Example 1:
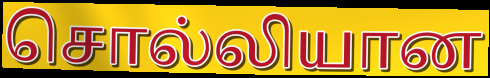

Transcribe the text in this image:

சொல்லியான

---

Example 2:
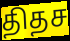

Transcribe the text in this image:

திதச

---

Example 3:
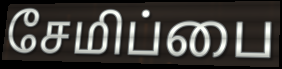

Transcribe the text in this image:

சேமிப்பை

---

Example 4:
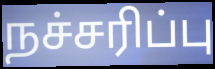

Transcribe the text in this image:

நச்சரிப்பு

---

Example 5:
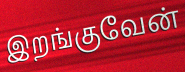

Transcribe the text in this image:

இறங்குவேன்